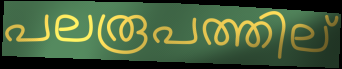
പലരൂപത്തില്